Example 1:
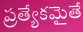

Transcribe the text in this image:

ప్రత్యేకమైతే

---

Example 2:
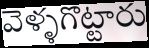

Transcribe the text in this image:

వెళ్ళగొట్టారు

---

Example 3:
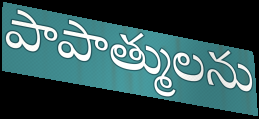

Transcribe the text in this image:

పాపాత్ములను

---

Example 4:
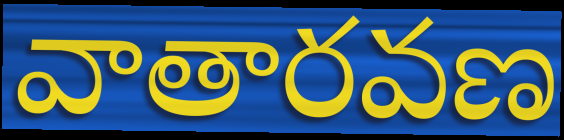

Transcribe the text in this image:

వాతారవణ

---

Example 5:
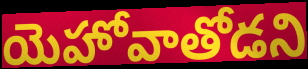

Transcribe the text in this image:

యెహోవాతోడని